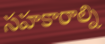
సహకారాల్ని